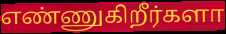
எண்ணுகிறீர்களா